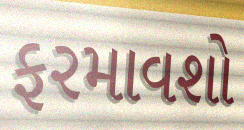
ફરમાવશો